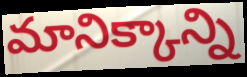
మానిక్కాన్ని